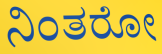
ನಿಂತರೋ